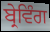
ਬ੍ਰੇਵਿੰਗ